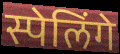
स्पेलिंगे